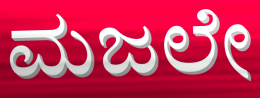
ಮಜಲೇ